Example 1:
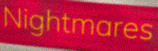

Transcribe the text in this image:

Nightmares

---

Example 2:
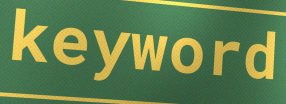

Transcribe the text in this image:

keyword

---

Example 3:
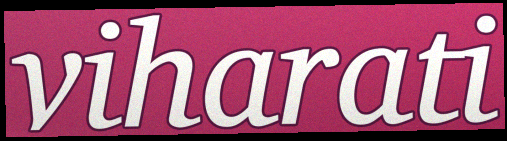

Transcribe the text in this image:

viharati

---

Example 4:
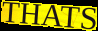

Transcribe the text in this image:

THATS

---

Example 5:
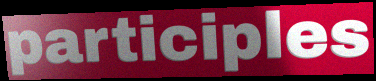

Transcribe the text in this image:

participles